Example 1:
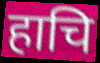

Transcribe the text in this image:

हाचि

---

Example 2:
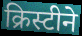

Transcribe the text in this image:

क्रिस्टीने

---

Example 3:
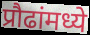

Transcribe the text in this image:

प्रौढांमध्ये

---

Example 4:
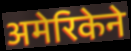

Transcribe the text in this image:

अमेरिकेने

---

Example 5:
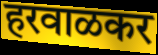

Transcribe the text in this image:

हरवाळकर